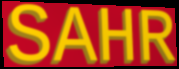
SAHR